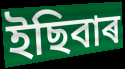
ইছিবাৰ